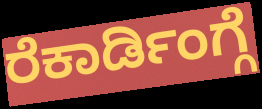
ರೆಕಾರ್ಡಿಂಗ್ಗೆ